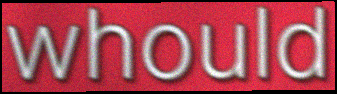
whould